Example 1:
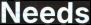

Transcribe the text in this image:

Needs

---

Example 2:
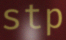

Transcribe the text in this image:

stp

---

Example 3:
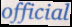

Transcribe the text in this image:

official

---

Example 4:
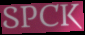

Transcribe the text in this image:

SPCK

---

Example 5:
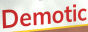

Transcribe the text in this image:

Demotic